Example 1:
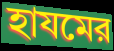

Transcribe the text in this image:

হাযমের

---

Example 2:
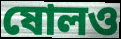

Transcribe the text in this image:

ষোলও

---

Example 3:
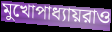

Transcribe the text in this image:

মুখোপাধ্যায়রাও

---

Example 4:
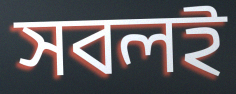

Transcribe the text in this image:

সবলই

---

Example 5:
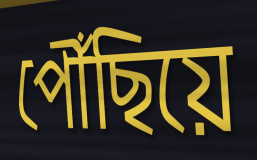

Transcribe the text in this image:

পৌঁছিয়ে